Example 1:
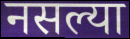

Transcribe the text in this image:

नसल्या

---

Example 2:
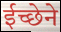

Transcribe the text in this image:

ईच्छेने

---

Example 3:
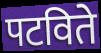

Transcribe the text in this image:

पटविते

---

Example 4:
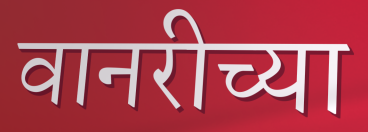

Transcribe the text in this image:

वानरीच्या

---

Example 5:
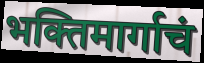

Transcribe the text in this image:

भक्तिमार्गाचं